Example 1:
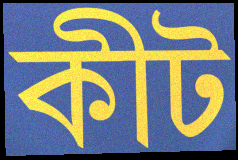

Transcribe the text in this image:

কীট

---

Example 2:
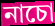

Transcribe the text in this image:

নাচো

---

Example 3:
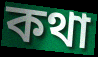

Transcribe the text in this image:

কথা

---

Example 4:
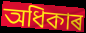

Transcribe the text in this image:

অধিকাৰ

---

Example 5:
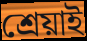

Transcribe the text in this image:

শ্ৰেয়াই